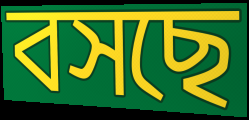
বসছে